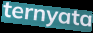
ternyata